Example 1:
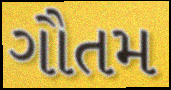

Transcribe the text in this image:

ગૌતમ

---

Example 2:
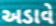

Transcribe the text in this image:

અડાવે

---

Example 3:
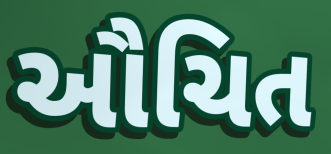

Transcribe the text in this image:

ઔચિત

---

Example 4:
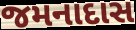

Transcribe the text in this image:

જમનાદાસ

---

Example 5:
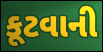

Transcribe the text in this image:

કૂટવાની